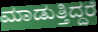
ಮಾಡುತ್ತಿದ್ದರೆ